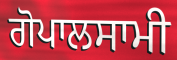
ਗੋਪਾਲਸਾਮੀ